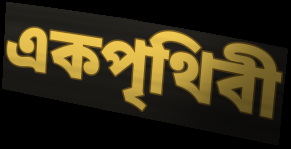
একপৃথিবী